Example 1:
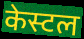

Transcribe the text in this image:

केस्टल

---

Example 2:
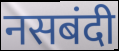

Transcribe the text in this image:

नसबंदी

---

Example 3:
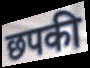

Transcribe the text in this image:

छपकी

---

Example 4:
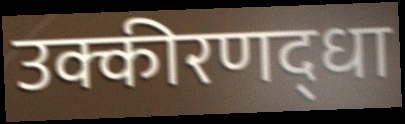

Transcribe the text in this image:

उक्कीरणद्धा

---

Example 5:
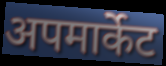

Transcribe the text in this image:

अपमार्केट